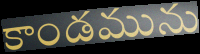
కాండమును